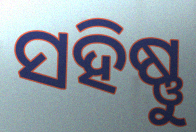
ସହିଷ୍ଣୁ